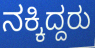
ನಕ್ಕಿದ್ದರು